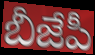
బీజేపీ